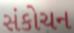
સંકોચન